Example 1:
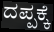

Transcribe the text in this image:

ದಪ್ಪಕ್ಕೆ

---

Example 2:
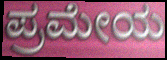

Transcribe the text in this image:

ಪ್ರಮೇಯ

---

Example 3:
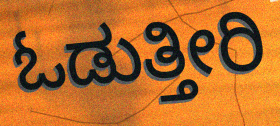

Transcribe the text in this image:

ಓಡುತ್ತೀರಿ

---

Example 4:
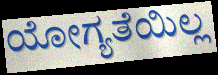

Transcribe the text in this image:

ಯೋಗ್ಯತೆಯಿಲ್ಲ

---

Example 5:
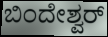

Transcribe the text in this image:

ಬಿಂದೇಶ್ವರ್